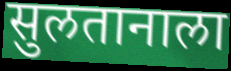
सुलतानाला